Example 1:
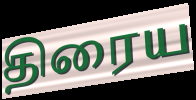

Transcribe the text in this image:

திரைய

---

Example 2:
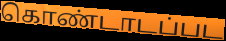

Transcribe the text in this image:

கொண்டாடப்பட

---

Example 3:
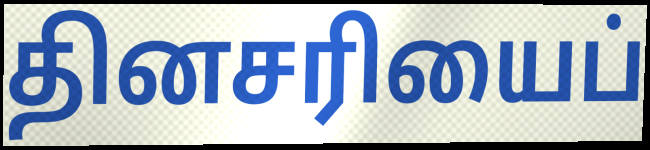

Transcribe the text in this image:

தினசரியைப்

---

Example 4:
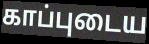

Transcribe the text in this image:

காப்புடைய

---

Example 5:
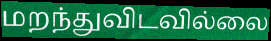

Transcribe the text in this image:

மறந்துவிடவில்லை